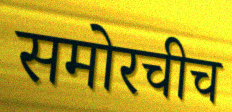
समोरचीच